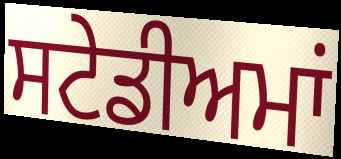
ਸਟੇਡੀਅਮਾਂ